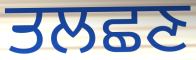
ਤਲਛਣ